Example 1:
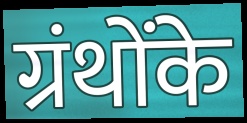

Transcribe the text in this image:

ग्रंथोंके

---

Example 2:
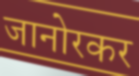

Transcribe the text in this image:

जानोरकर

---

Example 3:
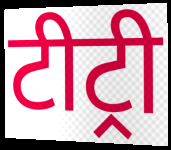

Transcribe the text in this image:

टीट्री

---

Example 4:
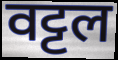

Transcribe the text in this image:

वट्टल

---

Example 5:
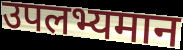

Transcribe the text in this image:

उपलभ्यमान